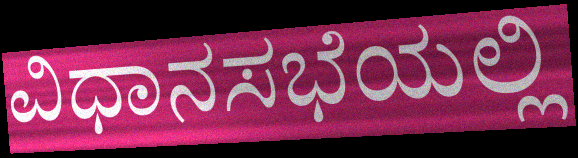
ವಿಧಾನಸಭೆಯಲ್ಲಿ